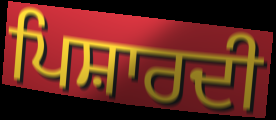
ਪਿਸ਼ਾਰਦੀ